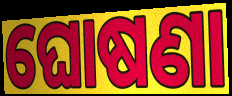
ଘୋଷଣା